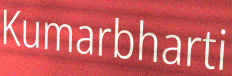
Kumarbharti